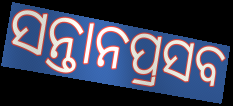
ସନ୍ତାନପ୍ରସବ